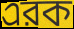
এরক